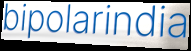
bipolarindia